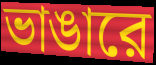
ভাঙারে